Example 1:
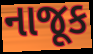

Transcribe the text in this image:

નાજૂક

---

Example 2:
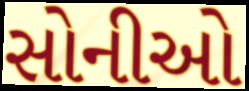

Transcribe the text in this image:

સોનીઓ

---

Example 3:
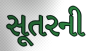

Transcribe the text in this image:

સૂતરની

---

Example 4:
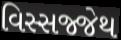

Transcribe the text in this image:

વિસ્સજ્જેથ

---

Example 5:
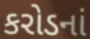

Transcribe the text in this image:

કરોડનાં